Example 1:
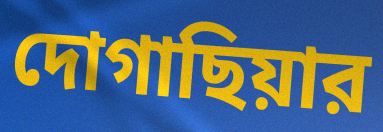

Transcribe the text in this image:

দোগাছিয়ার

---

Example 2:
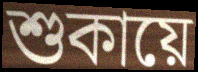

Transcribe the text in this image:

শুকায়ে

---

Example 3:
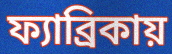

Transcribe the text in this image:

ফ্যাব্রিকায়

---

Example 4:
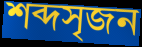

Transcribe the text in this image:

শব্দসৃজন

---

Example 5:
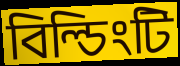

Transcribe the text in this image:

বিল্ডিংটি